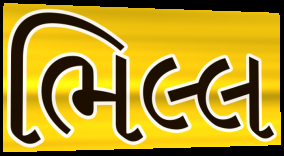
ભિલ્લ